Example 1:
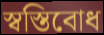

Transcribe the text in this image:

স্বস্তিবোধ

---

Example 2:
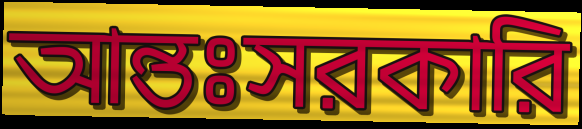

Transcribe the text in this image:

আন্তঃসরকারি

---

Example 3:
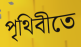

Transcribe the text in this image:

পৃথিবীতে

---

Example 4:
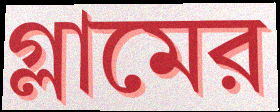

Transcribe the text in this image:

গ্লামের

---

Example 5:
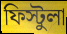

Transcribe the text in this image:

ফিস্টুলা